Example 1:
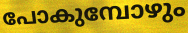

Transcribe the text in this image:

പോകുമ്പോഴും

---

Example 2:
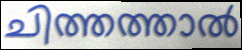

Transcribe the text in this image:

ചിത്തത്താൽ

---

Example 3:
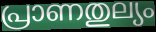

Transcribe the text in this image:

പ്രാണതുല്യം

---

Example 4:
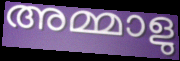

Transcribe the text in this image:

അമ്മാളു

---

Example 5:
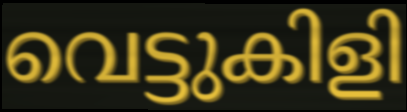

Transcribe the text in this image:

വെട്ടുകിളി